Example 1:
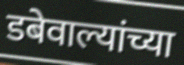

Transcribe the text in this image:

डबेवाल्यांच्या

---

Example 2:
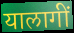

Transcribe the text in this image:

यालागीं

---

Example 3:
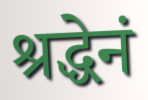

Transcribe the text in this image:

श्रद्धेनं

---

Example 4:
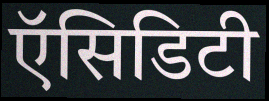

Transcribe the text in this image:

ऍसिडिटी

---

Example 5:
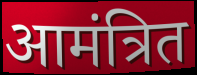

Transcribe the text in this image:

आमंत्रित